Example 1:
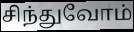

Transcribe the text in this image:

சிந்துவோம்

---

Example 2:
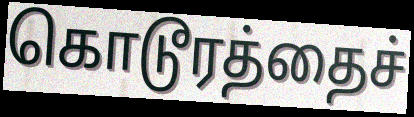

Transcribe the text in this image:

கொடூரத்தைச்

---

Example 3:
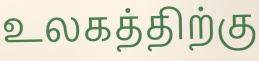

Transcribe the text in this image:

உலகத்திற்கு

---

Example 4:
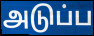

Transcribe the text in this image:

அடுப்ப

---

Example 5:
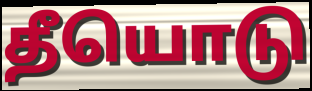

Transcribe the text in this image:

தீயொடு